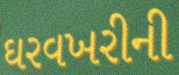
ઘરવખરીની